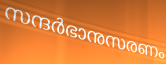
സന്ദർഭാനുസരണം